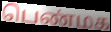
பெண்மக